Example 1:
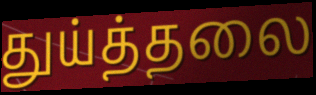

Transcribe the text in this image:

துய்த்தலை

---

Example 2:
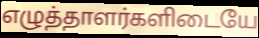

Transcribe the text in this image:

எழுத்தாளர்களிடையே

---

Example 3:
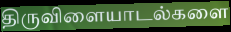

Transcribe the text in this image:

திருவிளையாடல்களை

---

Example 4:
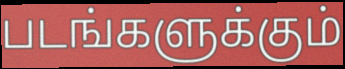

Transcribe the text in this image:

படங்களுக்கும்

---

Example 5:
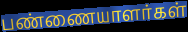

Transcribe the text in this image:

பண்ணையாளர்கள்